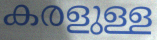
കരളുള്ള